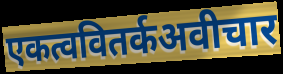
एकत्ववितर्कअवीचार